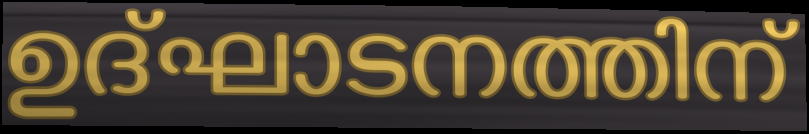
ഉദ്ഘാടനത്തിന്